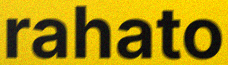
rahato